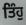
ਤਿੰਹੁ